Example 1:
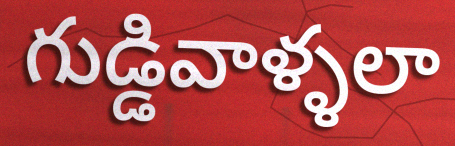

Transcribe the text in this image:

గుడ్డివాళ్ళలా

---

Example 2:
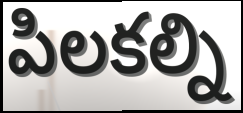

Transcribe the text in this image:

పిలకల్ని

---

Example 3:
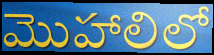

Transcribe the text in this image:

మొహాలిలో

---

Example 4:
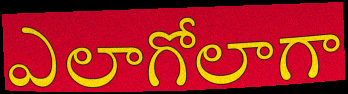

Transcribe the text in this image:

ఎలాగోలాగా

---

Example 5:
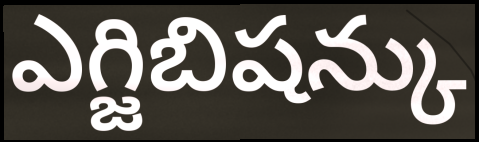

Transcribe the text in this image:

ఎగ్జిబిషన్కు